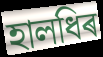
হালধিৰ